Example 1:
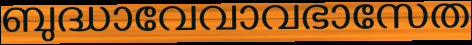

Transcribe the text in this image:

ബുദ്ധാവേവാവഭാസേത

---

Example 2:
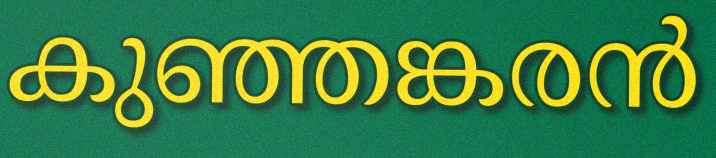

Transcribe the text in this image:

കുഞ്ഞങ്കരൻ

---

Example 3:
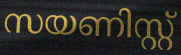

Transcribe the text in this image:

സയണിസ്റ്റ്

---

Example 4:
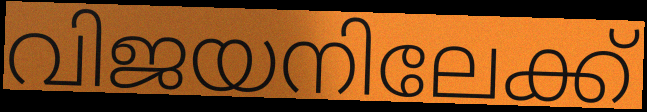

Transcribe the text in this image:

വിജയനിലേക്ക്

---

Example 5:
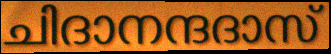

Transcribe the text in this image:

ചിദാനന്ദദാസ്